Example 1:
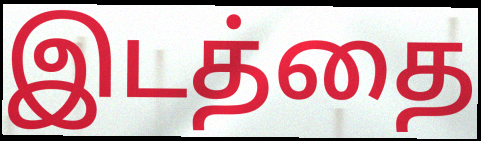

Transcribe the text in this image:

இடத்தை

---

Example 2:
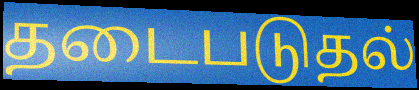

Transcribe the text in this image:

தடைபடுதல்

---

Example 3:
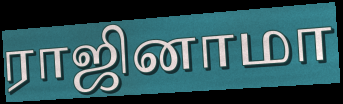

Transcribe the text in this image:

ராஜினாமா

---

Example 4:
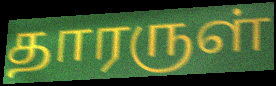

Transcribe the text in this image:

தாரருள்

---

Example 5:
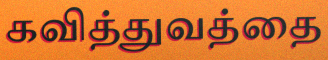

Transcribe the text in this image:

கவித்துவத்தை